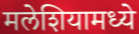
मलेशियामध्ये